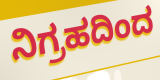
ನಿಗ್ರಹದಿಂದ